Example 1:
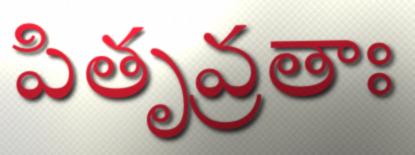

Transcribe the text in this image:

పితృవ్రతాః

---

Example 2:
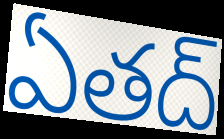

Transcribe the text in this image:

ఏతద్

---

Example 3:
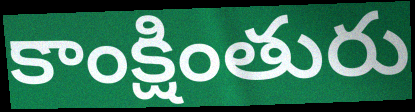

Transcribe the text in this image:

కాంక్షింతురు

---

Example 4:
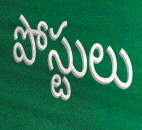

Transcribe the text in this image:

పోస్టులు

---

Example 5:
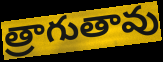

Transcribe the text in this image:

త్రాగుతావు